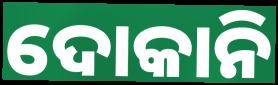
ଦୋକାନି